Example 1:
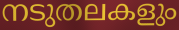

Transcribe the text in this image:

നടുതലകളും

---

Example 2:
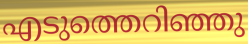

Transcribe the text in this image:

എടുത്തെറിഞ്ഞു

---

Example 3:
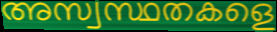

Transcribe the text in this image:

അസ്വസ്ഥതകളെ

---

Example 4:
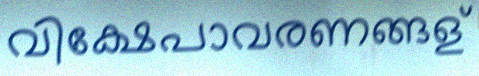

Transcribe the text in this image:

വിക്ഷേപാവരണങ്ങള്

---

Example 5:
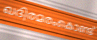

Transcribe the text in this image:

ഖദിരമരംകൊണ്ട്